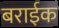
बराईक